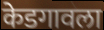
केडगावला